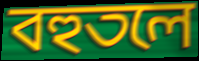
বহুতলে